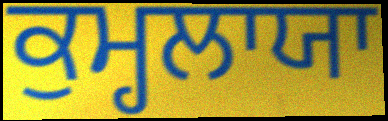
ਕੁਮ੍ਹਲਾਯਾ